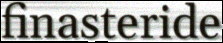
finasteride